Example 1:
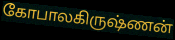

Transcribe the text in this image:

கோபாலகிருஷ்ணன்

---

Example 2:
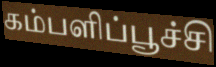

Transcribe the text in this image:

கம்பளிப்பூச்சி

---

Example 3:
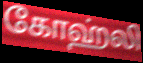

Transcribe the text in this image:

கோஹ்லி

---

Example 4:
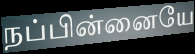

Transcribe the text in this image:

நப்பின்னையே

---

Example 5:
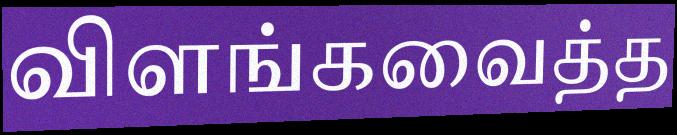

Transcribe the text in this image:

விளங்கவைத்த